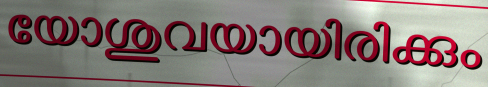
യോശുവയായിരിക്കും